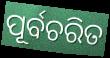
ପୂର୍ବଚରିତ